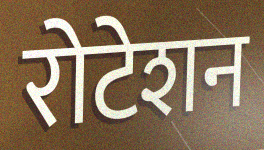
रोटेशन